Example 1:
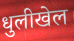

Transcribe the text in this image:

धुलीखेल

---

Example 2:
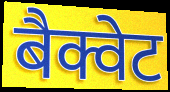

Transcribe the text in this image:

बैक्वेट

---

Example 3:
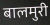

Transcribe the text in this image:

बालमुरी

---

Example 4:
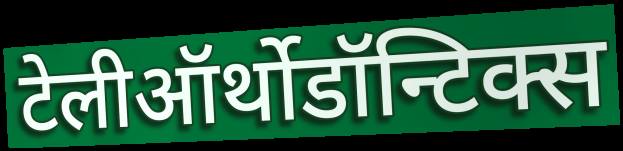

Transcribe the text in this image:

टेलीऑर्थोडॉन्टिक्स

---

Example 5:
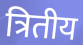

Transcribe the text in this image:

त्रितीय